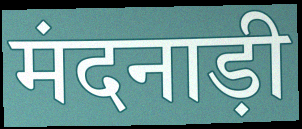
मंदनाड़ी